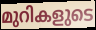
മുറികളുടെ